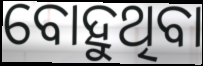
ବୋହୁଥିବା